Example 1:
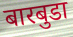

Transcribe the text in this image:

बारबुडा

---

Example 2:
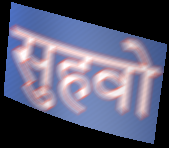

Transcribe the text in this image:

सुहवो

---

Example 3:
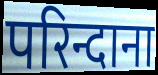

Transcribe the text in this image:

परिन्दाना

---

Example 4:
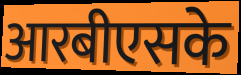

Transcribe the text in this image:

आरबीएसके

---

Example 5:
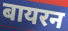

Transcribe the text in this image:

बायरन